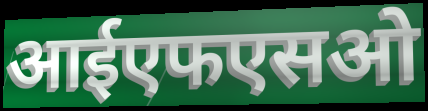
आईएफएसओ